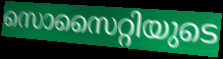
സൊസൈറ്റിയുടെ